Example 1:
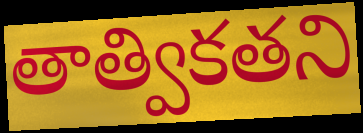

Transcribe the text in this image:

తాత్వికతని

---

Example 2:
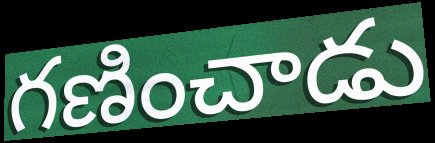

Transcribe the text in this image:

గణించాడు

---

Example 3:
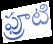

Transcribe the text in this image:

ఫ్రూటి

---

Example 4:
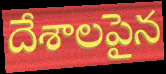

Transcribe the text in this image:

దేశాలపైన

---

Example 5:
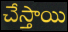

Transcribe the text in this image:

చేస్తాయి